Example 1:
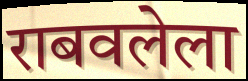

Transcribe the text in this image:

राबवलेला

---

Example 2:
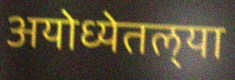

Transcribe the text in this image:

अयोध्येतल्या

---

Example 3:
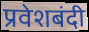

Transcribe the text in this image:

प्रवेशबंदी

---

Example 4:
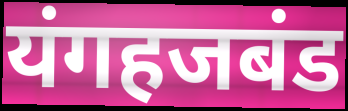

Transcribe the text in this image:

यंगहजबंड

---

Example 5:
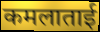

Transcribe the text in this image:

कमलाताई